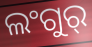
ଲଂଗୁର୍